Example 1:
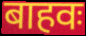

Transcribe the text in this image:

बाहवः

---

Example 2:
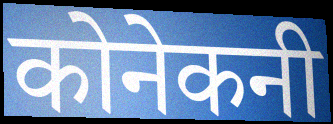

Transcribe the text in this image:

कोनेकनी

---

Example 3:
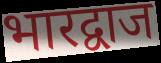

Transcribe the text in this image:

भारद्वाज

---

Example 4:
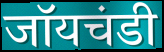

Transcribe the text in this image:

जॉयचंडी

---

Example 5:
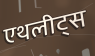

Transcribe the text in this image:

एथलीट्स